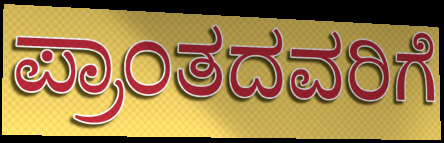
ಪ್ರಾಂತದವರಿಗೆ